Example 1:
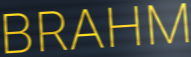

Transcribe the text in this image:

BRAHM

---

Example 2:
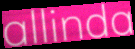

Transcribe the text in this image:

allinda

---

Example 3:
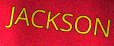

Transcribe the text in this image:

JACKSON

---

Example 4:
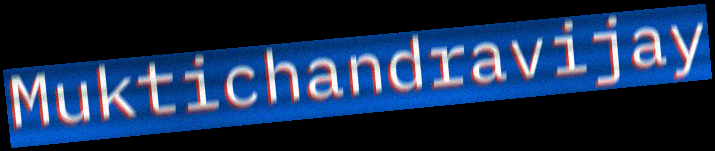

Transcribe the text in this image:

Muktichandravijay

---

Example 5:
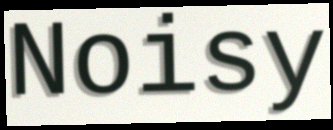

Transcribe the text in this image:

Noisy